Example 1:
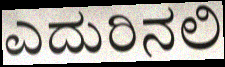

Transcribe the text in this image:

ಎದುರಿನಲಿ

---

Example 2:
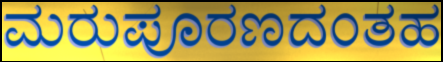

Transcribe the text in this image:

ಮರುಪೂರಣದಂತಹ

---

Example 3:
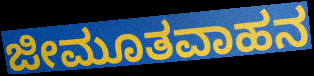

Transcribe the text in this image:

ಜೀಮೂತವಾಹನ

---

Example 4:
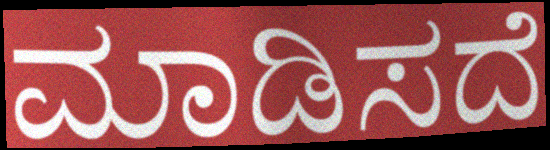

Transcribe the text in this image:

ಮಾಡಿಸದೆ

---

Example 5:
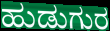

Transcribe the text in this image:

ಹುಡುಗುರ